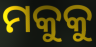
ମକୁକୁ